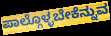
ಪಾಲ್ಗೊಳ್ಳಬೇಕೆನ್ನುವ